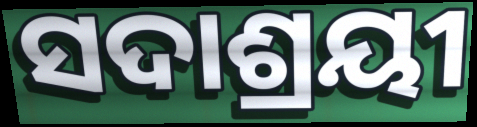
ସଦାଶ୍ରୟୀ